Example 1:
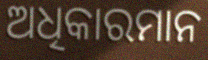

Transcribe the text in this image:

ଅଧିକାରମାନ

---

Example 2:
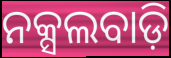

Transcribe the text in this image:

ନକ୍ସଲବାଡ଼ି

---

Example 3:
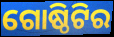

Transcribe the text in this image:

ଗୋଷ୍ଠିଟିର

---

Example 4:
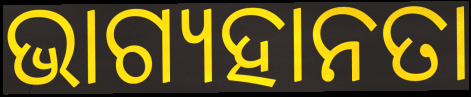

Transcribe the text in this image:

ଭାଗ୍ୟହାନତା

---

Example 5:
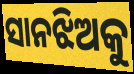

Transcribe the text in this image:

ସାନଝିଅକୁ